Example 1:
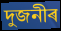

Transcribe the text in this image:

দুজনীৰ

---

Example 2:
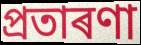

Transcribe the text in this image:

প্ৰতাৰণা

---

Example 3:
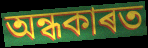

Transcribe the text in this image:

অন্ধকাৰত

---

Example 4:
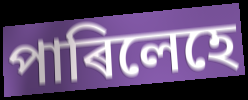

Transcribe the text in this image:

পাৰিলেহে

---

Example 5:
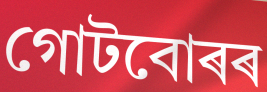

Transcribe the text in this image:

গোটবোৰৰ